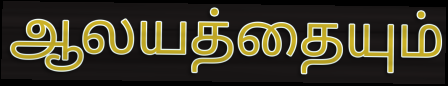
ஆலயத்தையும்